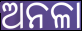
ଅନଳା